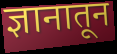
ज्ञानातून